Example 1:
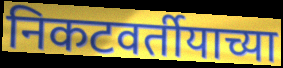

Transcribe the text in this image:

निकटवर्तीयाच्या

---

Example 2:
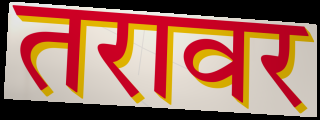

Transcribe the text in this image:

तरावर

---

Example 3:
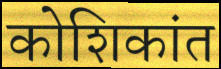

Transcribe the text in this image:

कोशिकांत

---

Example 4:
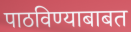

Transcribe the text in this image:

पाठविण्याबाबत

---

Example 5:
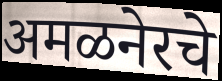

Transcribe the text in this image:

अमळनेरचे